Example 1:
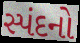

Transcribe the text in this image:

સ્પંદનો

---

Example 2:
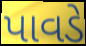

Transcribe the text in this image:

પાવડે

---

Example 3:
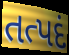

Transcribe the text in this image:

તત્પદં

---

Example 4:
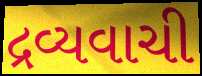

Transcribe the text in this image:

દ્રવ્યવાચી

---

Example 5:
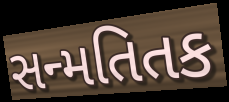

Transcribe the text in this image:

સન્મતિતક